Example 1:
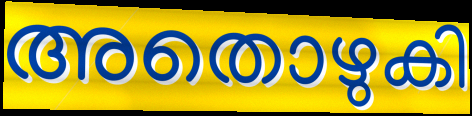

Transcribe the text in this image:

അതൊഴുകി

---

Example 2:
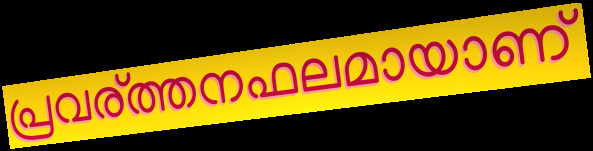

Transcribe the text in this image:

പ്രവര്ത്തനഫലമായാണ്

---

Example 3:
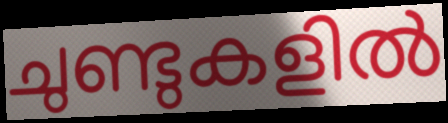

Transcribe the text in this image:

ചുണ്ടുകളിൽ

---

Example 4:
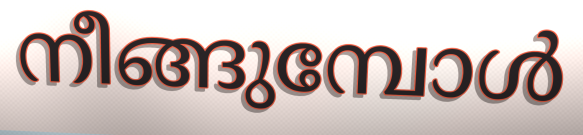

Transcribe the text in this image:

നീങ്ങുമ്പോൾ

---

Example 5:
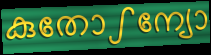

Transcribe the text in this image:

കുതോഽന്യോ